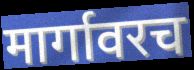
मार्गावरच